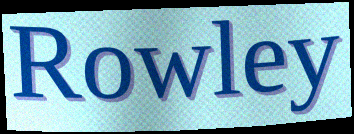
Rowley